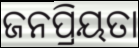
ଜନପ୍ରିୟତା